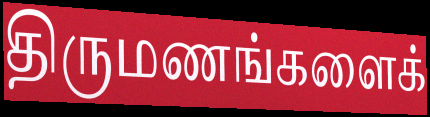
திருமணங்களைக்